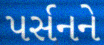
પર્સનને